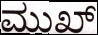
ಮುಖ್